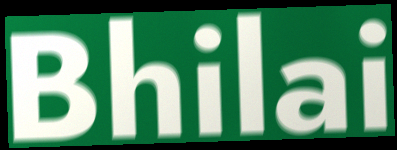
Bhilai